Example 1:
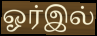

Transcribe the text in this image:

ஓர்இல்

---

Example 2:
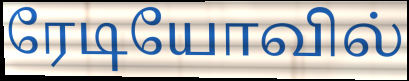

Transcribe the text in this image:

ரேடியோவில்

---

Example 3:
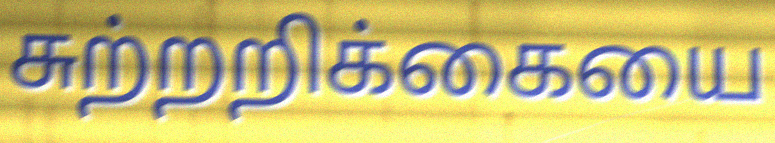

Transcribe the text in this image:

சுற்றறிக்கையை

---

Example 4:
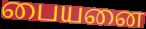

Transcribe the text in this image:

பையனை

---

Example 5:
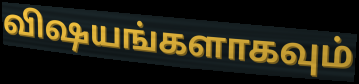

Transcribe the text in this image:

விஷயங்களாகவும்